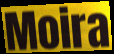
Moira